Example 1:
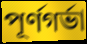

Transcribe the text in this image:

পূর্ণগর্ভা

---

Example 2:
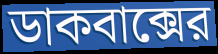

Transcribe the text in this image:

ডাকবাক্সের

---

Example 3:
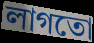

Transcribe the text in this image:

লাগতো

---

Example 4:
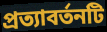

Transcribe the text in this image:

প্রত্যাবর্তনটি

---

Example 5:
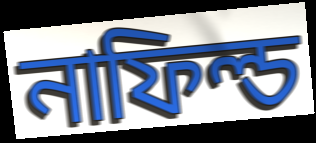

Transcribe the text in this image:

নাফিল্ড